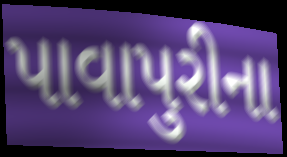
પાવાપુરીના